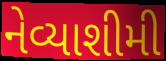
નેવ્યાશીમી